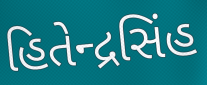
હિતેન્દ્રસિંહ